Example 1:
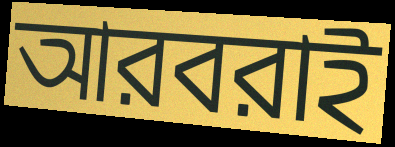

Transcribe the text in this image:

আরবরাই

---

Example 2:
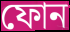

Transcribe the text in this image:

ফোন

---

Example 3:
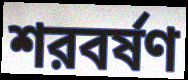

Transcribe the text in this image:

শরবর্ষণ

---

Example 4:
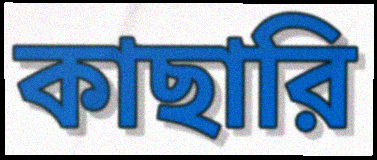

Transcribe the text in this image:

কাছারি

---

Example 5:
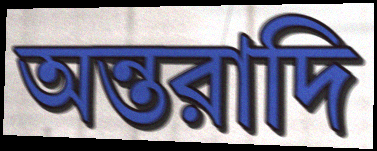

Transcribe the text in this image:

অন্তরাদি